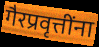
गैरप्रवृत्तींना